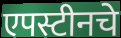
एपस्टीनचे